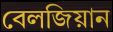
বেলজিয়ান